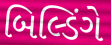
બિલ્ડિંગે